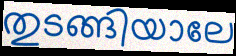
തുടങ്ങിയാലേ